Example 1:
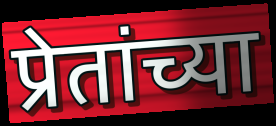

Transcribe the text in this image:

प्रेतांच्या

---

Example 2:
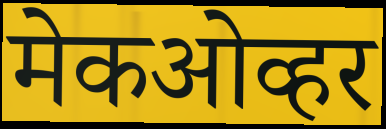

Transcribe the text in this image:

मेकओव्हर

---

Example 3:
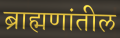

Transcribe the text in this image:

ब्राह्मणांतील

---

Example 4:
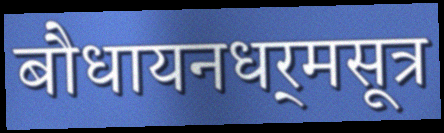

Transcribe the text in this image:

बौधायनधर्मसूत्र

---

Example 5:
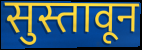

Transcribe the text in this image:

सुस्तावून